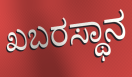
ಖಬರಸ್ಥಾನ